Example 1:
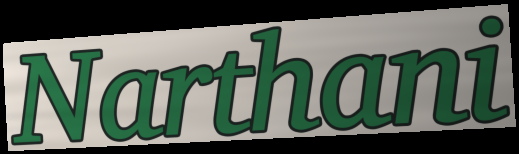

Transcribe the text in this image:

Narthani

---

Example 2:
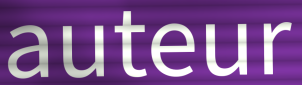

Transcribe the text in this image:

auteur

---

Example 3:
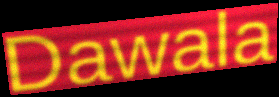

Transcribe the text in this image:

Dawala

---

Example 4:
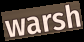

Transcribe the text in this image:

warsh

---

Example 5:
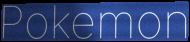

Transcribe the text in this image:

Pokemon